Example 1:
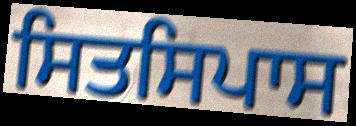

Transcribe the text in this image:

ਸਿਤਸਿਪਾਸ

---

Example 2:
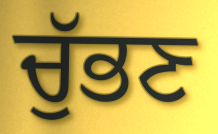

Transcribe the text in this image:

ਚੁੱਭਣ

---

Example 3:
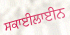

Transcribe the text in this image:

ਸਕਾਈਲਾਈਨ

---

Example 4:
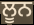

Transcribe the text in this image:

ਲੂਨ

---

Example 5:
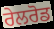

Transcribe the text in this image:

ਰੇਲਰੋਡ